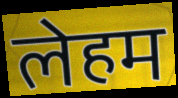
लेहम